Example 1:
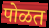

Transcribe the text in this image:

पोळत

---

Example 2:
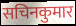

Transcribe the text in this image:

सचिनकुमार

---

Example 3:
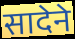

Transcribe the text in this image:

सादेने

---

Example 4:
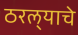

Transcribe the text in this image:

ठरल्याचे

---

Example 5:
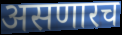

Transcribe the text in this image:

असणारच